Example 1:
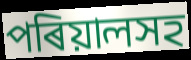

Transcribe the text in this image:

পৰিয়ালসহ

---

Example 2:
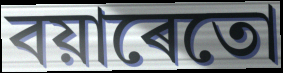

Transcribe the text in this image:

বয়াৰেতো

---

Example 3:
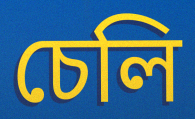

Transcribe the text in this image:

চেলি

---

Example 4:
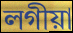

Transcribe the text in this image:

লগীয়া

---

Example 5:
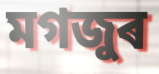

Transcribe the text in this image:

মগজুৰ